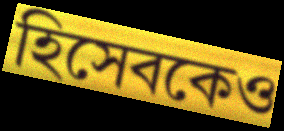
হিসেবকেও